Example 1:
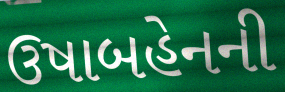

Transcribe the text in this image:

ઉષાબહેનની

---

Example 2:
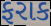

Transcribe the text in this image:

ફરાક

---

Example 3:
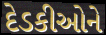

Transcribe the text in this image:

દેડકીઓને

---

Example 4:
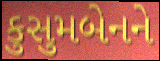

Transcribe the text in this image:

કુસુમબેનને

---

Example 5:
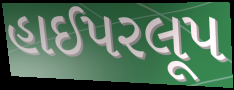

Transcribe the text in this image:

હાઈપરલૂપ